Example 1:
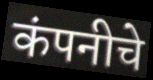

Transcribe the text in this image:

कंपनीचे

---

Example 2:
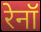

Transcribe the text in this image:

रेनॉ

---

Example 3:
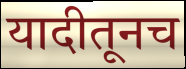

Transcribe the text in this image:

यादीतूनच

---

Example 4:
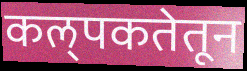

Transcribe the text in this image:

कल्पकतेतून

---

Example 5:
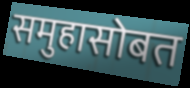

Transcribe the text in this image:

समुहासोबत